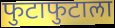
फुटाफुटाला